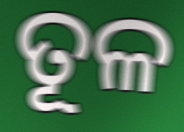
ତୂଳ